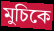
মুচিকে